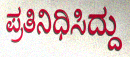
ಪ್ರತಿನಿಧಿಸಿದ್ದು